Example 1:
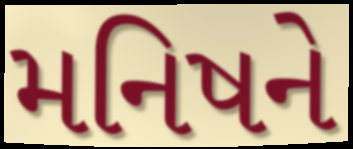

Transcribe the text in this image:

મનિષને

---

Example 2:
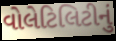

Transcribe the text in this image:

વોલેટિલિટીનું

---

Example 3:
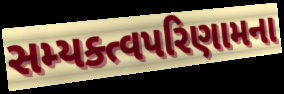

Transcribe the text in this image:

સમ્યક્ત્વપરિણામના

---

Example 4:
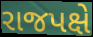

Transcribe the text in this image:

રાજપક્ષે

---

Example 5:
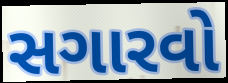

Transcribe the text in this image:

સગારવો